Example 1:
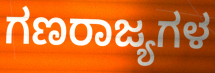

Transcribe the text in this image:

ಗಣರಾಜ್ಯಗಳ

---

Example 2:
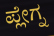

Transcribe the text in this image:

ಪ್ಲೇಗ್ನ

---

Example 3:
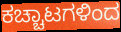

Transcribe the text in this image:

ಕಚ್ಚಾಟಗಳಿಂದ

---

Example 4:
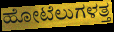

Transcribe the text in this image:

ಹೋಟೆಲುಗಳತ್ತ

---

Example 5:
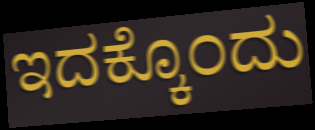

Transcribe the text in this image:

ಇದಕ್ಕೊಂದು